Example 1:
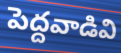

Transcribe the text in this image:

పెద్దవాడివి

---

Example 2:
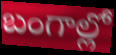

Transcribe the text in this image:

బంగాల్లో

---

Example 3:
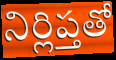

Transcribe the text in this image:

నిర్లిప్తతో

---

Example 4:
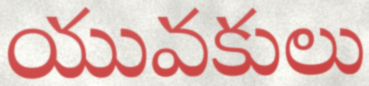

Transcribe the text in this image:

యువకులు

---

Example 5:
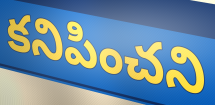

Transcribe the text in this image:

కనిపించని